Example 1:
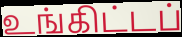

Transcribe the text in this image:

உங்கிட்டப்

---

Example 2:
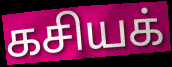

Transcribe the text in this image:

கசியக்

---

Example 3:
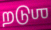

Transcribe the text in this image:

றடுஶ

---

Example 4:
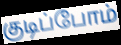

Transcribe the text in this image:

குடிப்போம்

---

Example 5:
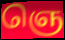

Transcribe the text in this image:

ஞெ